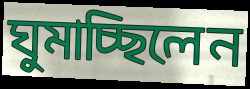
ঘুমাচ্ছিলেন